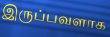
இருப்பவளாக